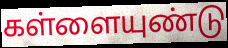
கள்ளையுண்டு